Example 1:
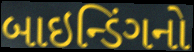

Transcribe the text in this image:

બાઇન્ડિંગનો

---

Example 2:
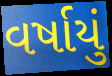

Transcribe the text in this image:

વર્ષાયું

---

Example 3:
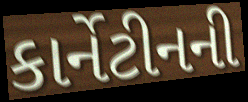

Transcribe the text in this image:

કાર્નેટીનની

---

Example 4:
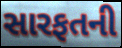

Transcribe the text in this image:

સારફતની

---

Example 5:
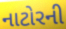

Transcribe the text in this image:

નાટોરની